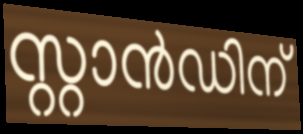
സ്റ്റാൻഡിന്